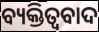
ବ୍ୟକ୍ତିତ୍ବବାଦ